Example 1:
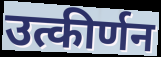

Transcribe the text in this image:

उत्कीर्णन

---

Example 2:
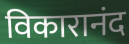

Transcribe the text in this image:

विकारानंद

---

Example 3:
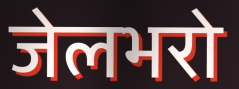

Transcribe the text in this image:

जेलभरो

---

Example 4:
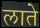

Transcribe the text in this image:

लाते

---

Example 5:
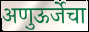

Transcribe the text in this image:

अणुऊर्जेचा